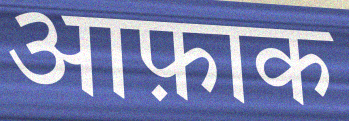
आफ़ाक